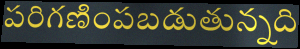
పరిగణింపబడుతున్నది